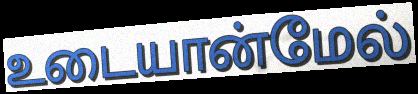
உடையான்மேல்